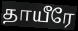
தாயீரே